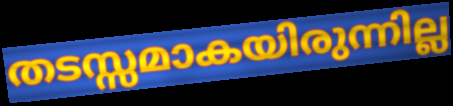
തടസ്സമാകയിരുന്നില്ല